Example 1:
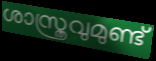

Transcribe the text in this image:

ശാസ്ത്രവുമുണ്ട്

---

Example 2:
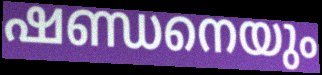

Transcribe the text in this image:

ഷണ്ഡനെയും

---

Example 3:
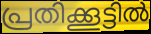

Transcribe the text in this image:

പ്രതിക്കൂട്ടിൽ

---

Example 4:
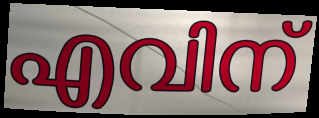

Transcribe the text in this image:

എവിന്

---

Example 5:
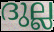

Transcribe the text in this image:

ദുല്ല